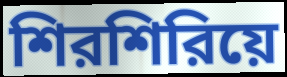
শিরশিরিয়ে